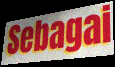
Sebagai